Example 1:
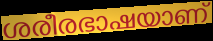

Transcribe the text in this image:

ശരീരഭാഷയാണ്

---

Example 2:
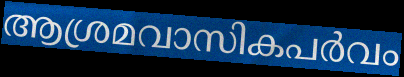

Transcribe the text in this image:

ആശ്രമവാസികപർവം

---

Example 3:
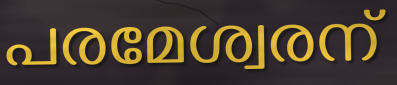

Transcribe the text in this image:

പരമേശ്വരന്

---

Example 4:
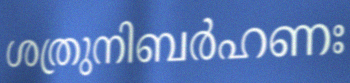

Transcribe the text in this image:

ശത്രുനിബർഹണഃ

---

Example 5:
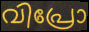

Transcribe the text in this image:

വിപ്രോ